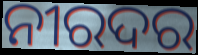
ନୀରଦର